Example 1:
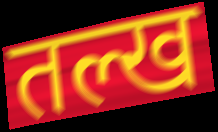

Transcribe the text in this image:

तल्ख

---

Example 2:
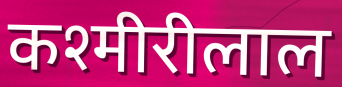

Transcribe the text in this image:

कश्मीरीलाल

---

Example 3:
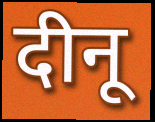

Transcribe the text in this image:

दीनू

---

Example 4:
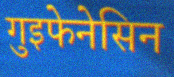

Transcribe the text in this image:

गुइफेनेसिन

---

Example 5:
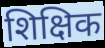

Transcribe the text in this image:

शिक्षिक